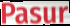
Pasur